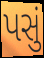
પસું